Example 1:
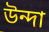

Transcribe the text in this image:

উন্দা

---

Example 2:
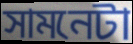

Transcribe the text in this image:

সামনেটা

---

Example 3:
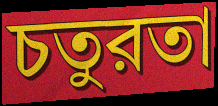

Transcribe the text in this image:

চতুরতা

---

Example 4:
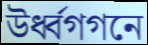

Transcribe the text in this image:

উর্ধ্বগগনে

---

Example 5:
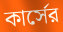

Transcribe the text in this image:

কার্সের